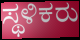
ಸ್ಥಳಿಕರು